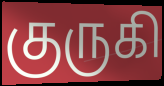
குருகி